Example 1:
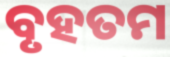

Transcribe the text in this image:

ବୃହତମ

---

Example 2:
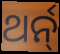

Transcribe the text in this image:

ଥର୍ନ୍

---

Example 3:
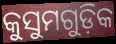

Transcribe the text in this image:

କୁସୁମଗୁଡ଼ିକ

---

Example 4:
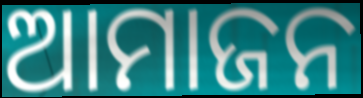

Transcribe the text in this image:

ଆମାଜନ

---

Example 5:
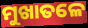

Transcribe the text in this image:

ମୁଖାତଳେ